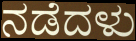
ನಡೆದಳು